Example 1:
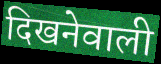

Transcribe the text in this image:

दिखनेवाली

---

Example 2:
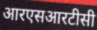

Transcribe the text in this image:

आरएसआरटीसी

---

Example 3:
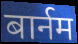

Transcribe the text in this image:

बार्नम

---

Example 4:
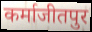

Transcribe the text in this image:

कर्माजीतपुर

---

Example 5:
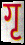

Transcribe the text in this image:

गृ